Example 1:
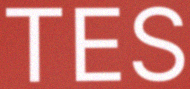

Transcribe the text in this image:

TES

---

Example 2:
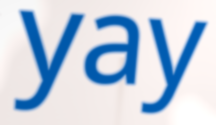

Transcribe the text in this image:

yay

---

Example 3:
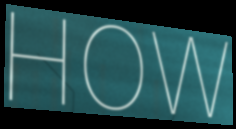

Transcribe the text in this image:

HOW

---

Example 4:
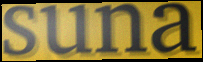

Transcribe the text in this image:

suna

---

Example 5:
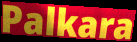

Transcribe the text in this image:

Palkara